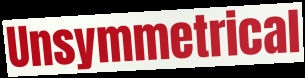
Unsymmetrical